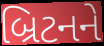
બ્રિટનને